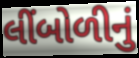
લીંબોળીનું